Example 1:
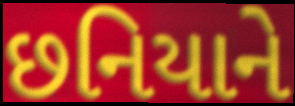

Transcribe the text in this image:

છનિયાને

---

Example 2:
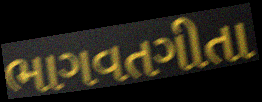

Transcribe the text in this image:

ભાગવતગીતા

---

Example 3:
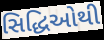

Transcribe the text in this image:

સિદ્ધિઓથી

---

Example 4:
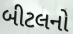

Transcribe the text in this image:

બીટલનો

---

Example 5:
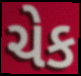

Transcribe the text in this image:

ચેક